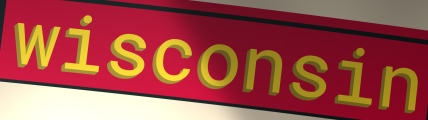
wisconsin